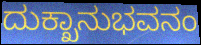
ದುಕ್ಖಾನುಭವನಂ